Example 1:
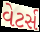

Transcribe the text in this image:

વેટર્સ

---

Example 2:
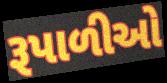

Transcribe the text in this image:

રૂપાળીઓ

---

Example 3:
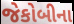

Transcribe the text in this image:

જેકોબીના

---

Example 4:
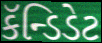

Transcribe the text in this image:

કૅન્ડિડેટ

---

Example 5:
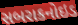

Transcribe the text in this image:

સબરાકનોઇડ